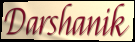
Darshanik